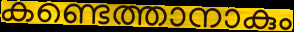
കണ്ടെത്താനാകും